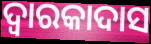
ଦ୍ୱାରକାଦାସ